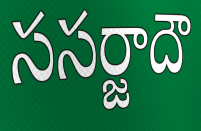
ససర్జాదౌ